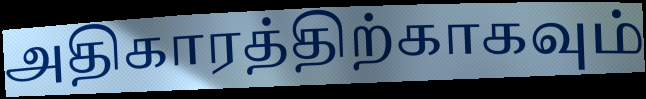
அதிகாரத்திற்காகவும்